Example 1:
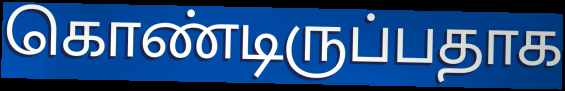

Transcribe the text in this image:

கொண்டிருப்பதாக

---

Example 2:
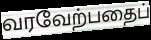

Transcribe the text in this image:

வரவேற்பதைப்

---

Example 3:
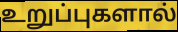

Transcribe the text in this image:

உறுப்புகளால்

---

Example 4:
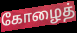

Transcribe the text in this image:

கோழைத்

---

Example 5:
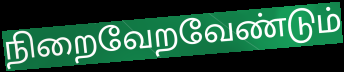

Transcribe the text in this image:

நிறைவேறவேண்டும்